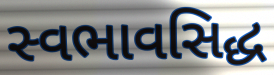
સ્વભાવસિદ્ધ